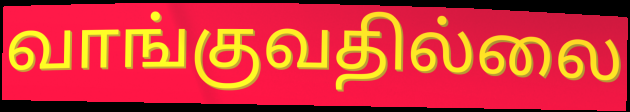
வாங்குவதில்லை